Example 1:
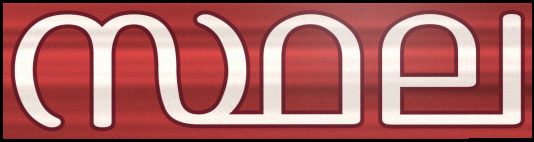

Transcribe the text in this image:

സ്ഥല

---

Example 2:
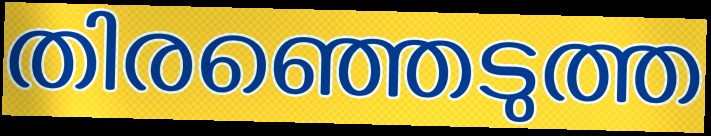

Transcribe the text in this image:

തിരഞ്ഞെടുത്ത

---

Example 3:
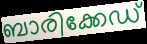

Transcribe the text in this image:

ബാരിക്കേഡ്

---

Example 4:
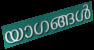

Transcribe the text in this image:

യാഗങ്ങൾ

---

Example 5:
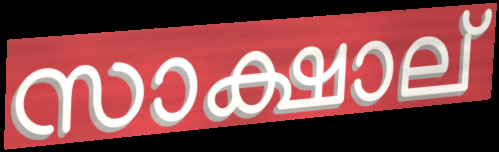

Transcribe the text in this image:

സാക്ഷാല്